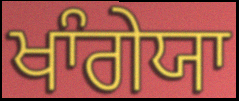
ਖਾੰਗੇਯਾ